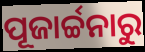
ପୂଜାର୍ଚ୍ଚନାରୁ